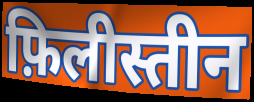
फ़िलीस्तीन